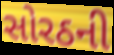
સોરઠની